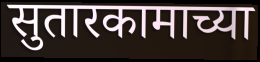
सुतारकामाच्या